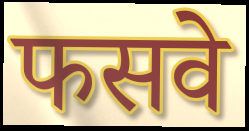
फसवे